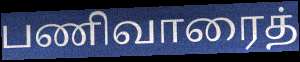
பணிவாரைத்